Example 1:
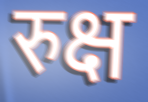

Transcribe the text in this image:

रुक्ष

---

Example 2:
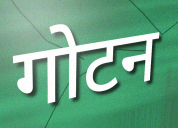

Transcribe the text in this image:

गोटन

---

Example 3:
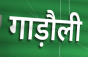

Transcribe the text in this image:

गाड़ौली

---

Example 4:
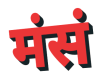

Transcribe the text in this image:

मंसं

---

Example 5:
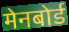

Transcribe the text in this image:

मेनबोर्ड